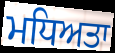
ਮਧਿਅਤਾ